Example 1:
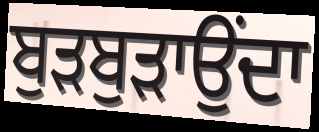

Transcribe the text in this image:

ਬੁੜਬੁੜਾਉਂਦਾ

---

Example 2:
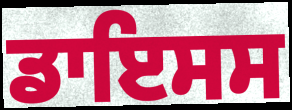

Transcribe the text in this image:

ਡਾਇਸਸ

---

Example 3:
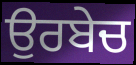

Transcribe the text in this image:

ਉਰਬੇਚ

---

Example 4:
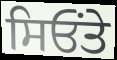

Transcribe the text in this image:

ਸਿਓਂਤੇ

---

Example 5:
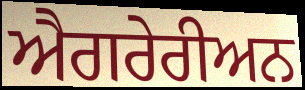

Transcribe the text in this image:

ਐਗਰੇਰੀਅਨ